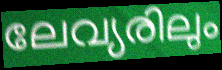
ലേവ്യരിലും